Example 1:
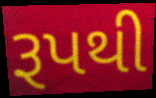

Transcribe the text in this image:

રૂપથી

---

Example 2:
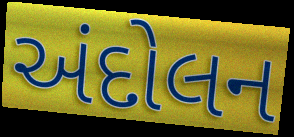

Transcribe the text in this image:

અંદોલન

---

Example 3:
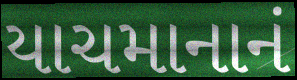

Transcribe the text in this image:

યાચમાનાનં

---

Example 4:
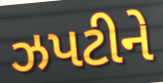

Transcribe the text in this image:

ઝપટીને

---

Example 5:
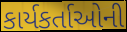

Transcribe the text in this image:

કાર્યકર્તાઓની